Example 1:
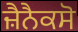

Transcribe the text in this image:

ਜ਼ੈਨੈਕਸੋ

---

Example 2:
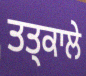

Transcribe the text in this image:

ਤਤ੍ਕਾਲੇ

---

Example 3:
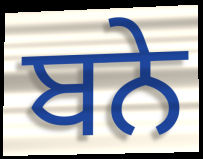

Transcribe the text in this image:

ਬਨੇ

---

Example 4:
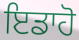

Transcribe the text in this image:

ਇਡਾਹੋ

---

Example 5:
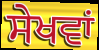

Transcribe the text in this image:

ਸੇਖਵਾਂ